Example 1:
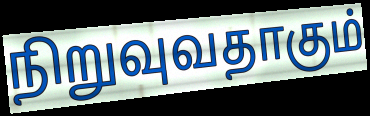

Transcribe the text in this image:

நிறுவுவதாகும்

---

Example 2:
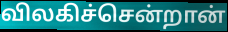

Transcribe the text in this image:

விலகிச்சென்றான்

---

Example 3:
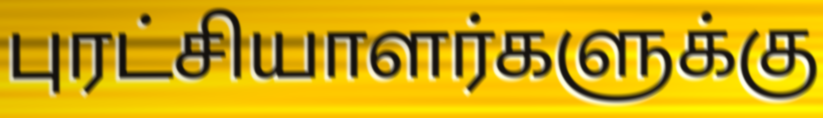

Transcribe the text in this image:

புரட்சியாளர்களுக்கு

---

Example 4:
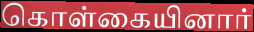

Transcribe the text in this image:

கொள்கையினார்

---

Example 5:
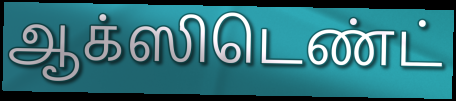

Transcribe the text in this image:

ஆக்ஸிடெண்ட்